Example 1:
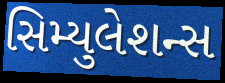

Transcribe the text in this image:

સિમ્યુલેશન્સ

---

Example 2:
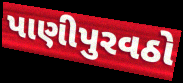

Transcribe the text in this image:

પાણીપુરવઠો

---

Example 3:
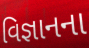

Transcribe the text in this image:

વિજ્ઞાનના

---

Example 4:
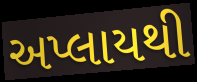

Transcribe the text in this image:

અપ્લાયથી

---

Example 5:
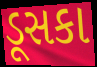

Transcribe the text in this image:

ડૂસકા